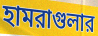
হামরাগুলার